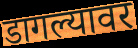
डागल्यावर